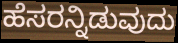
ಹೆಸರನ್ನಿಡುವುದು